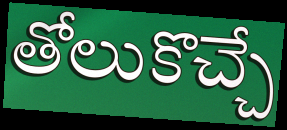
తోలుకొచ్చే